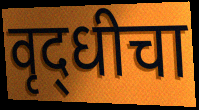
वृद्धीचा